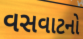
વસવાટનો